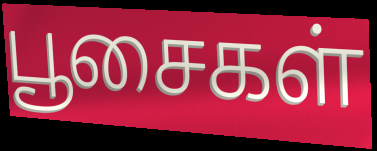
பூசைகள்